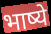
भाष्ये